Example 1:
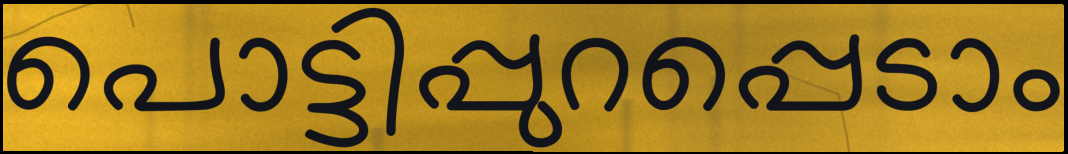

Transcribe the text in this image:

പൊട്ടിപ്പുറപ്പെടാം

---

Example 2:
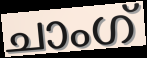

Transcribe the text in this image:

ചാംഗ്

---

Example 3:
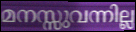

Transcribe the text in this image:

മനസ്സുവന്നില്ല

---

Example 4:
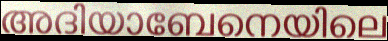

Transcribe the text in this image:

അദിയാബേനെയിലെ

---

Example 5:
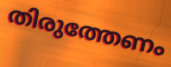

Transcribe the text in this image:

തിരുത്തേണം